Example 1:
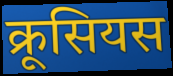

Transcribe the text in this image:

क्रूसियस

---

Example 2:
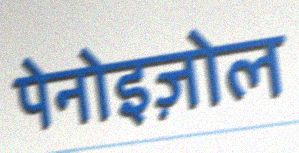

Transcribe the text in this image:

पेनोइज़ोल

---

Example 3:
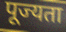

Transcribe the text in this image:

पूज्यता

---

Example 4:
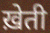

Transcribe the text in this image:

ख़ेती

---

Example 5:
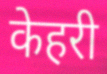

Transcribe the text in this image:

केहरी